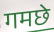
गमछे